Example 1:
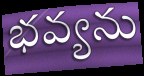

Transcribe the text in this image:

భవ్యను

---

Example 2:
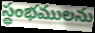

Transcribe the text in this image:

స్థంభములను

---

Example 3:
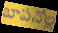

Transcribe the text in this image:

బాపనోల్ల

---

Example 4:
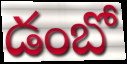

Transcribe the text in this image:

డంబో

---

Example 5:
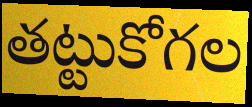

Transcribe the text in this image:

తట్టుకోగల